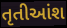
તૃતીઆંશ